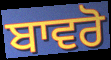
ਬਾਵਰੋ